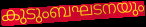
കുടുംബഘടനയും